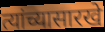
त्यांच्यासारखे